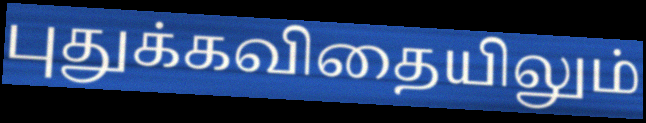
புதுக்கவிதையிலும்